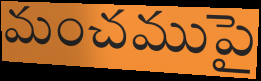
మంచముపై